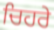
ਚਿਹਰੇ